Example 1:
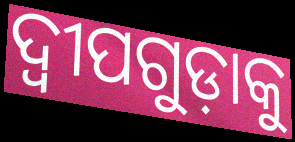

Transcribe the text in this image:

ଦ୍ୱୀପଗୁଡ଼ାକୁ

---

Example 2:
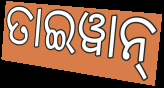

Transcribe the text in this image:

ତାଇୱାନ୍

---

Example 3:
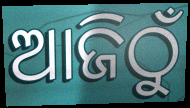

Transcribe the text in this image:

ଆଜିଠୁଁ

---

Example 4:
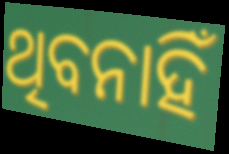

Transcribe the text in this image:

ଥିବନାହିଁ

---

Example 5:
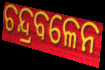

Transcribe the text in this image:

ଚନ୍ଦ୍ରବଳେନ